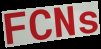
FCNs